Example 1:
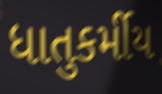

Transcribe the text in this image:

ધાતુકર્મીય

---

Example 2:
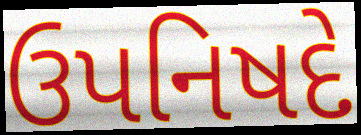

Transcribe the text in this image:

ઉપનિષદે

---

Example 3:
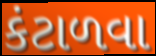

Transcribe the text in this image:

કંટાળવા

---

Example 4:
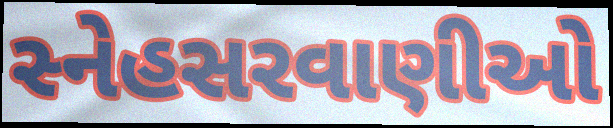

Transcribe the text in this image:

સ્નેહસરવાણીઓ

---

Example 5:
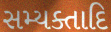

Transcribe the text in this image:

સમ્યક્તાદિ